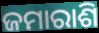
ଜମାରାଶି